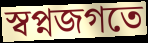
স্বপ্নজগতে